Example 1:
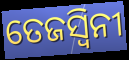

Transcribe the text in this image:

ତେଜସ୍ଵିନୀ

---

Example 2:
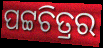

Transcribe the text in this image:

ପଟ୍ଟଚିତ୍ରର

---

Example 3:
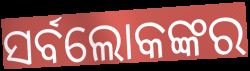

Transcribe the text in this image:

ସର୍ବଲୋକଙ୍କର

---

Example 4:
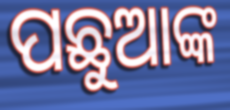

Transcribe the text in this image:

ପଛୁଆଙ୍କ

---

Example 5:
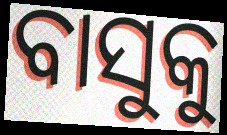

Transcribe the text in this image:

ବାସୁକୁ